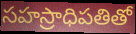
సహస్రాధిపతితో